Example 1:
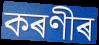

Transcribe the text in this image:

কৰণীৰ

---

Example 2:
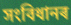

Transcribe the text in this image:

সংবিধানৰ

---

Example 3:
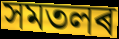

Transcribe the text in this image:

সমতলৰ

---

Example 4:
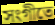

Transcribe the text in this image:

সংগীতে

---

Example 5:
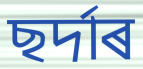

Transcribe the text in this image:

ছৰ্দাৰ